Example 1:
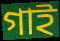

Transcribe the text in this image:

গাই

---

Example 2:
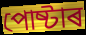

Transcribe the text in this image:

পোষ্টাৰ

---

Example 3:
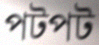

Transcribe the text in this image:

পটপট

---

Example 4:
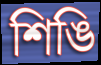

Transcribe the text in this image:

শিঙি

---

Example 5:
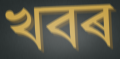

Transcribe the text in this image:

খবৰ